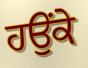
ਹਉਂਕੇ